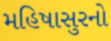
મહિષાસુરનો